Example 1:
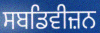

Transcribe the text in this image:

ਸਬਡਿਵੀਜ਼ਨ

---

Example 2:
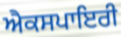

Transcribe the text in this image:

ਐਕਸਪਾਇਰੀ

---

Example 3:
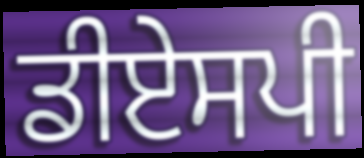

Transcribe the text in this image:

ਡੀਏਸਪੀ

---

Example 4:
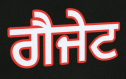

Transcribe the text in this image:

ਗੈਜੇਟ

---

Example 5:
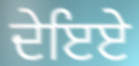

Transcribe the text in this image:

ਦੇਇਏ